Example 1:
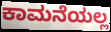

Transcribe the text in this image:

ಕಾಮನೆಯಲ್ಲ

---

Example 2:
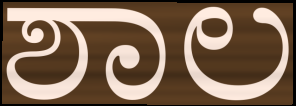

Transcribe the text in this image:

ಶಾಲ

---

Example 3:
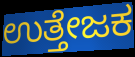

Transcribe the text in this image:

ಉತ್ತೇಜಕ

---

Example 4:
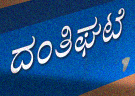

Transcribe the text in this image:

ದಂತಿಘಟೆ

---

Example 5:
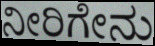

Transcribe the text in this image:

ನೀರಿಗೇನು